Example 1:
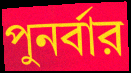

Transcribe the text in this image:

পুনর্বার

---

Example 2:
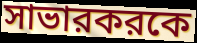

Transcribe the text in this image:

সাভারকরকে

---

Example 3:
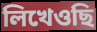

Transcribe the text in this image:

লিখেওছি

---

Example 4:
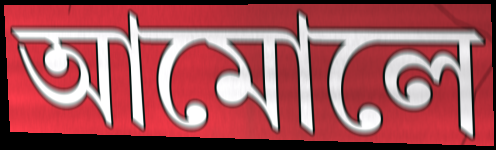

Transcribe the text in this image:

আমোলে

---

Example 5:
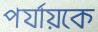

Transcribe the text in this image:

পর্যায়কে